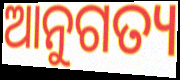
ଆନୁଗତ୍ୟ